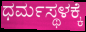
ಧರ್ಮಸ್ಥಳಕ್ಕೆ